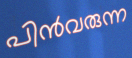
പിൻവരുന്ന